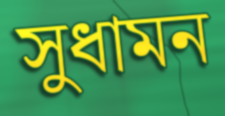
সুধামন